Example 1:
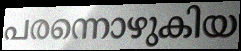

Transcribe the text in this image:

പരന്നൊഴുകിയ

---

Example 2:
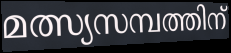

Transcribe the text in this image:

മത്സ്യസമ്പത്തിന്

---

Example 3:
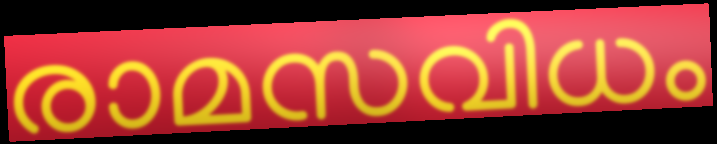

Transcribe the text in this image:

രാമസവിധം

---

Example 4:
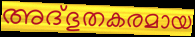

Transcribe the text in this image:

അദ്ഭുതകരമായ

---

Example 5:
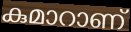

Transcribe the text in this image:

കുമാറാണ്